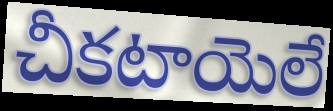
చీకటాయెలే